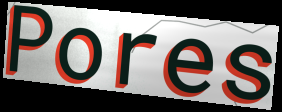
Pores